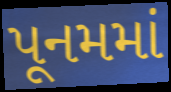
પૂનમમાં